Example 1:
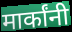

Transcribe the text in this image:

मार्कांनी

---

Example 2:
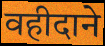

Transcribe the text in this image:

वहीदाने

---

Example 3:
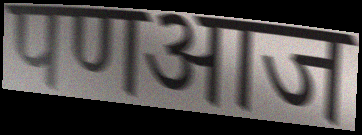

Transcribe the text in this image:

पणआज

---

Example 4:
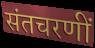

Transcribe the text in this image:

संतचरणीं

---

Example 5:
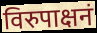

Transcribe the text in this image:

विरुपाक्षनं